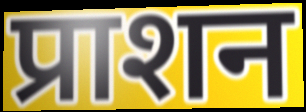
प्राशन